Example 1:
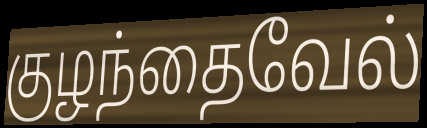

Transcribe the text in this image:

குழந்தைவேல்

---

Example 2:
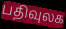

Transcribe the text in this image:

பதிவுலக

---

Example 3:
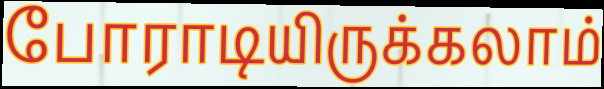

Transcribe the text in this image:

போராடியிருக்கலாம்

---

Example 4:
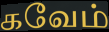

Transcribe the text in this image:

கவேம்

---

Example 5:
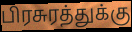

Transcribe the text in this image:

பிரசுரத்துக்கு